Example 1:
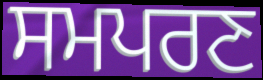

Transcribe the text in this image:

ਸਮਪਰਣ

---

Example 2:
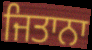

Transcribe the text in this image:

ਜਿਤਾਨਾ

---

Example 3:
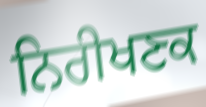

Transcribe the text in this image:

ਨਿਰੀਖਣਕ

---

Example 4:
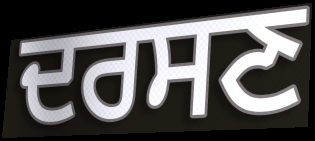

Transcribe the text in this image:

ਦਰਸਣ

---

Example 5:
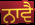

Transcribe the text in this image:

ਨਾਵੈ